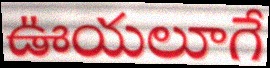
ఊయలూగే